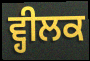
ਵ੍ਹੀਲਕ